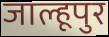
जाल्हूपुर